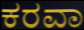
ಕರವಾ